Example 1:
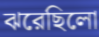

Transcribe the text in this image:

ঝরেছিলো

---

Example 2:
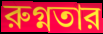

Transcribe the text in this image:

রুগ্নতার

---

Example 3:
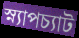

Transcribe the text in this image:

স্ন্যাপচ্যাট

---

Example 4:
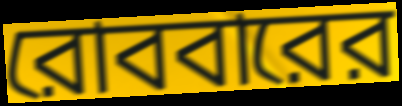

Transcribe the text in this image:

রোববারের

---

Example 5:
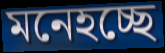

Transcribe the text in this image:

মনেহচ্ছে